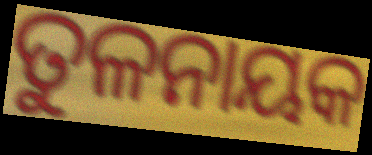
ତୁଳନାୟକ